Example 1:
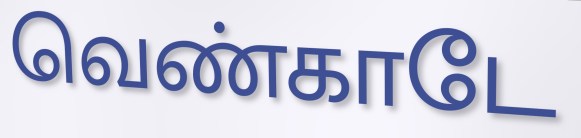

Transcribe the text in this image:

வெண்காடே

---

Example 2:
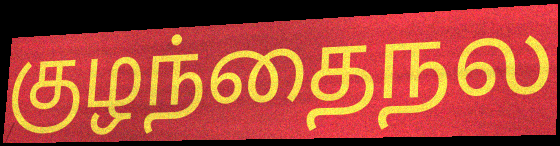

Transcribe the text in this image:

குழந்தைநல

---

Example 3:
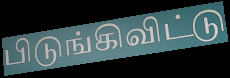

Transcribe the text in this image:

பிடுங்கிவிட்டு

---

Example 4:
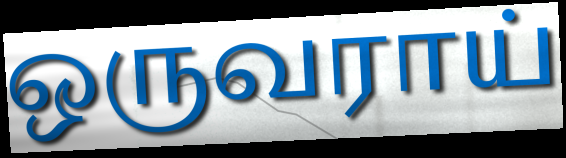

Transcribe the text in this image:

ஒருவராய்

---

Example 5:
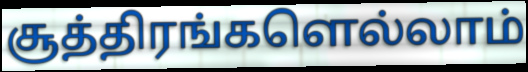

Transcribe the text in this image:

சூத்திரங்களெல்லாம்